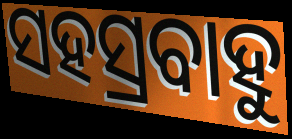
ସହସ୍ରବାହୁ